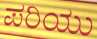
ಪರಿಯು